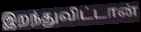
இறந்துவிட்டான்